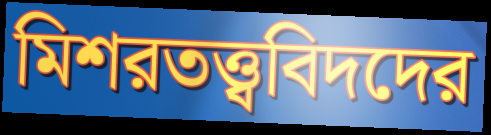
মিশরতত্ত্ববিদদের